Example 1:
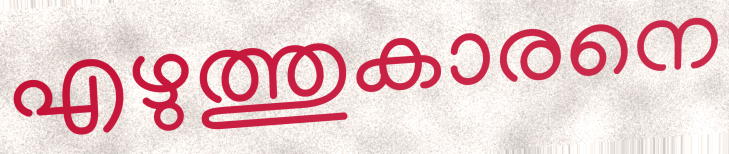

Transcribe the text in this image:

എഴുത്തുകാരനെ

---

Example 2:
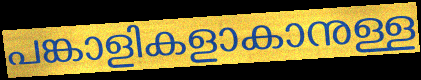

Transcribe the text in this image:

പങ്കാളികളാകാനുള്ള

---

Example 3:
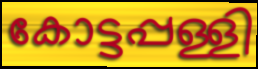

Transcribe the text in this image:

കോട്ടപ്പള്ളി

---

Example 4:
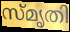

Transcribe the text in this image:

സ്മൃതി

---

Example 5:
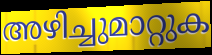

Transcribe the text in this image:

അഴിച്ചുമാറ്റുക